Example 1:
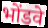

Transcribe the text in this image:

भोंडवे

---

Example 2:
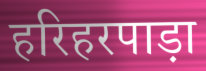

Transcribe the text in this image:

हरिहरपाड़ा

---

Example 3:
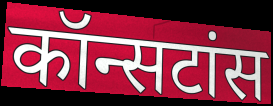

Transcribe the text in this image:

कॉन्सटांस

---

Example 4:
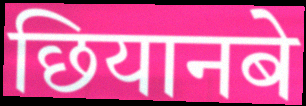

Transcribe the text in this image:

छियानबे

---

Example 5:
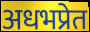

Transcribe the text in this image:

अधभप्रेत